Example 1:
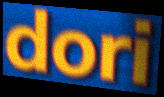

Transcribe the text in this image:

dori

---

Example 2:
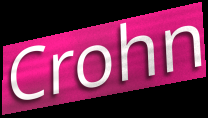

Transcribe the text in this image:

Crohn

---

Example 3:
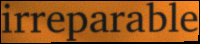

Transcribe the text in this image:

irreparable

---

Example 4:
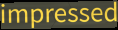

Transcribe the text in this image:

impressed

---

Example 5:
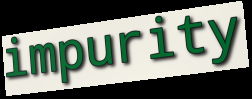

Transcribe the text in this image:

impurity